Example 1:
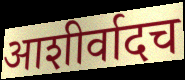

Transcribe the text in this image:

आशीर्वादच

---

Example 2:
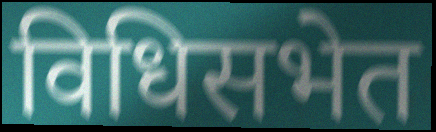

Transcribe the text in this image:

विधिसभेत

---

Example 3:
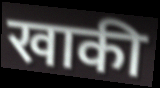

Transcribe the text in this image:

खाकी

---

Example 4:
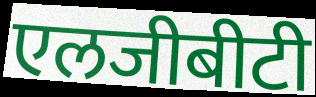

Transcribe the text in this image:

एलजीबीटी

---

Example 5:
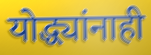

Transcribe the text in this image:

योद्ध्यांनाही